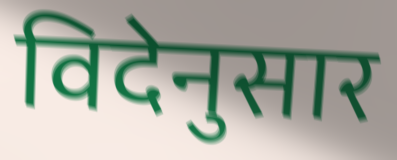
विदेनुसार